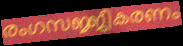
രംഗസജ്ജീകരണം